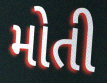
મોતી